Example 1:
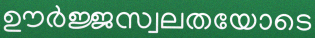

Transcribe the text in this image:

ഊർജ്ജസ്വലതയോടെ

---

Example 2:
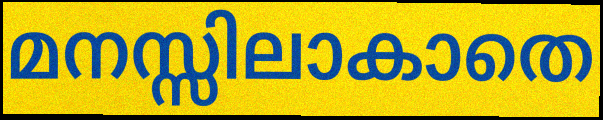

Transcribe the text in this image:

മനസ്സിലാകാതെ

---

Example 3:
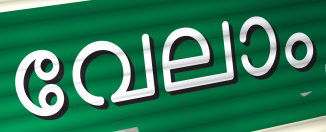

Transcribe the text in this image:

വേലാം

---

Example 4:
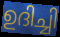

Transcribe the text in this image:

ഉദിച്ചി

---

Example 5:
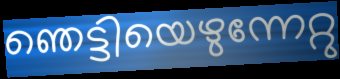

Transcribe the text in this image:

ഞെട്ടിയെഴുന്നേറ്റു